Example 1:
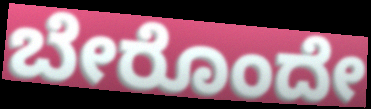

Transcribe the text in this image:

ಬೇರೊಂದೇ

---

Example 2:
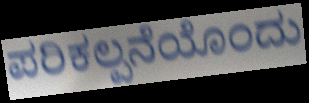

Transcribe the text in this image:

ಪರಿಕಲ್ಪನೆಯೊಂದು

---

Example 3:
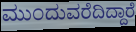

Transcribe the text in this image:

ಮುಂದುವರೆದಿದ್ದಾರೆ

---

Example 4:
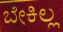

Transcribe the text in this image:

ಬೇಕಿಲ್ಲ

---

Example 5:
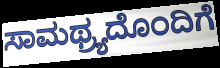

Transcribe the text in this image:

ಸಾಮಥ್ರ್ಯದೊಂದಿಗೆ